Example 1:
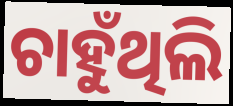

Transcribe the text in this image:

ଚାହୁଁଥିଲି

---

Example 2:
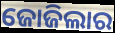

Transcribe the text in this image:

ଜୋଜିଲାର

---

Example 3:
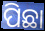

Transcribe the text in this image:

ପିଛା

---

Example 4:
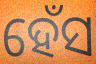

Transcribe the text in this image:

ହେଁସ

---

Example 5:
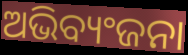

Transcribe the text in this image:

ଅଭିବ୍ୟଂଜନା